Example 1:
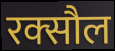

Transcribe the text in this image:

रक्‍सौल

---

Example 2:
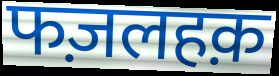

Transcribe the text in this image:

फज़लहक़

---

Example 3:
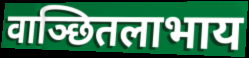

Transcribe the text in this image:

वाञ्छितलाभाय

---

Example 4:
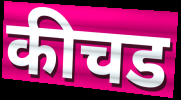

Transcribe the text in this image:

कीचड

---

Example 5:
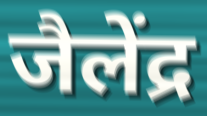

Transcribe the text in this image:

जैलेंद्र